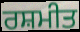
ਰਸ਼ਮੀਤ